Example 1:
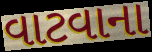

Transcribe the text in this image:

વાટવાના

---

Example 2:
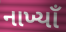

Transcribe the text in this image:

નાખ્યાઁ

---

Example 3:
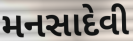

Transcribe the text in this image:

મનસાદેવી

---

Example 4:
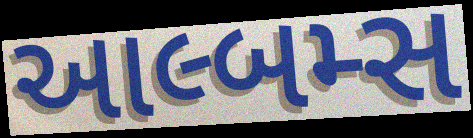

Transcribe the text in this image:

આલ્બમ્સ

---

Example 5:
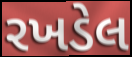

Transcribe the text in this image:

રખડેલ